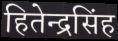
हितेन्द्रसिंह